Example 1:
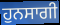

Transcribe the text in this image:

ਹੁਨਸਾਗੀ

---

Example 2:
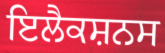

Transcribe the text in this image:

ਇਲੈਕਸ਼ਨਸ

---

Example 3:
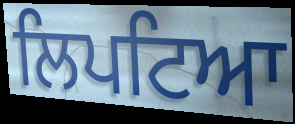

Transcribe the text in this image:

ਲਿਪਟਿਆ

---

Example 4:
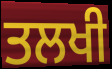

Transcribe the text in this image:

ਤਲਖੀ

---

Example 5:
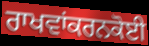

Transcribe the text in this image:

ਰਾਖਵਾਂਕਰਨਕੋਈ